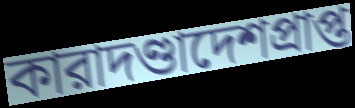
কারাদণ্ডাদেশপ্রাপ্ত